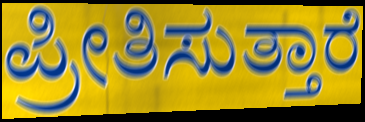
ಪ್ರೀತಿಸುತ್ತಾರೆ